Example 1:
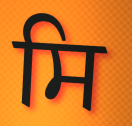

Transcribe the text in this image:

ਸਿ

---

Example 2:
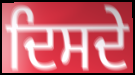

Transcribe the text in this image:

ਦਿਸਦੇ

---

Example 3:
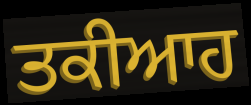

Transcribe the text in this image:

ਤਕੀਆਹ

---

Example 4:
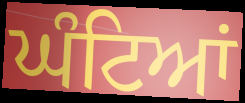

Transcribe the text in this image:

ਘੰਟਿਆਂ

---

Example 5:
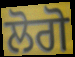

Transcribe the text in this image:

ਲੋਗੋ